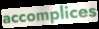
accomplices